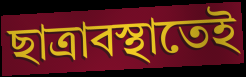
ছাত্রাবস্থাতেই